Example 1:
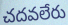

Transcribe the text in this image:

చదవలేరు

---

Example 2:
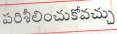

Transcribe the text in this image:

పరిశీలించుకోవచ్చు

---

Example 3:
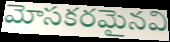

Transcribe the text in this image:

మోసకరమైనవి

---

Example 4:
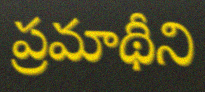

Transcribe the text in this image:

ప్రమాథీని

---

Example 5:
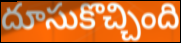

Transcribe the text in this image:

దూసుకొచ్చింది